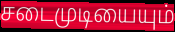
சடைமுடியையும்